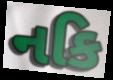
નકિ